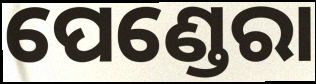
ପେଣ୍ଡେରା